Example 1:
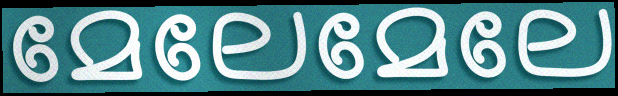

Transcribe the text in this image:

മേലേമേലേ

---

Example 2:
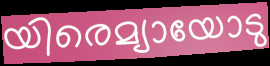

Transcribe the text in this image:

യിരെമ്യായോടു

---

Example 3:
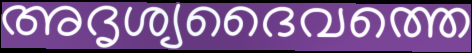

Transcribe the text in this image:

അദൃശ്യദൈവത്തെ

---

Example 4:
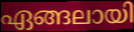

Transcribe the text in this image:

ഏങ്ങലായി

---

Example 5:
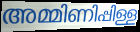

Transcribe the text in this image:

അമ്മിണിപ്പിള്ള